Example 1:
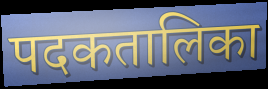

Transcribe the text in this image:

पदकतालिका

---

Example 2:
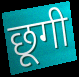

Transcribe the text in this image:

छूगी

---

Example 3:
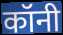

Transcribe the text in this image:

कॉनी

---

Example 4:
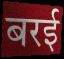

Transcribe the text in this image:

बरई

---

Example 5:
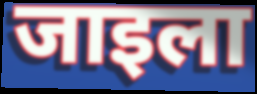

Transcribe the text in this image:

जाइला